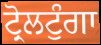
ਟ੍ਰੋਲਟੁੰਗਾ